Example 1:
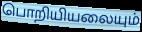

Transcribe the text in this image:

பொறியியலையும்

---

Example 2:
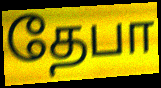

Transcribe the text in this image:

தேபா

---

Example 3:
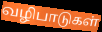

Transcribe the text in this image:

வழிபாடுகள்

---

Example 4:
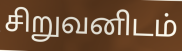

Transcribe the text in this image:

சிறுவனிடம்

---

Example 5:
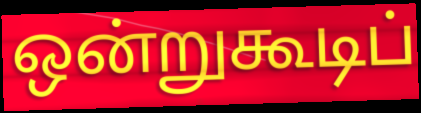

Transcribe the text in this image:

ஒன்றுகூடிப்